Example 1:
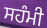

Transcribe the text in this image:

ਸਹੰਮੀ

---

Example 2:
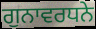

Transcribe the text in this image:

ਗੁਨਾਵਰਧਨੇ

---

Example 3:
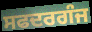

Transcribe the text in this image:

ਸਫਦਰਗੰਜ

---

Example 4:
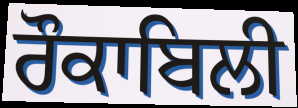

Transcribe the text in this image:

ਰੌਕਾਬਿਲੀ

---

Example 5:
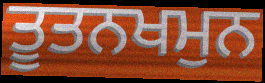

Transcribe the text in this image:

ਤੂਤਨਖਮੁਨ